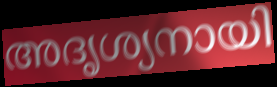
അദൃശ്യനായി